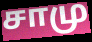
சாமு